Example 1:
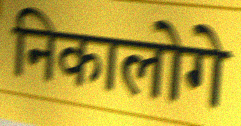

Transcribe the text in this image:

निकालोगे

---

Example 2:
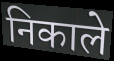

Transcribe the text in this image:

निकाले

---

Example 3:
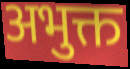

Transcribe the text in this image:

अभुक्त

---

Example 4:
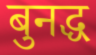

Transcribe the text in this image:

बुनद्ध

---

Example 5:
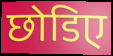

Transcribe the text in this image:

छोडिए